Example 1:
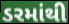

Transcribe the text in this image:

ડરમાંથી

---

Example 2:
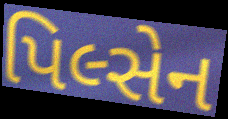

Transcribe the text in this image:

પિલ્સેન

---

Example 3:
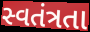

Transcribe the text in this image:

સ્વતંત્રતા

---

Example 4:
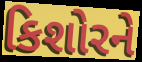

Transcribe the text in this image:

કિશોરને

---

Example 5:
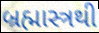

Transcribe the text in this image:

બ્રહ્માસ્ત્રથી